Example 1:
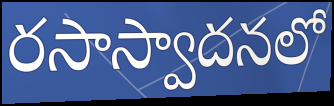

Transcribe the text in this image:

రసాస్వాదనలో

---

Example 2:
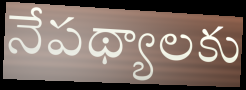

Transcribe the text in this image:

నేపథ్యాలకు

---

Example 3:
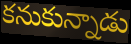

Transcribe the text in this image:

కనుకున్నాడు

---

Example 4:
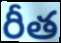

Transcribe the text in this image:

రీత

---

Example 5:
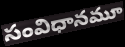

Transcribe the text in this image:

సంవిధానమూ